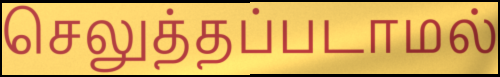
செலுத்தப்படாமல்